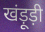
खंड़ूड़ी